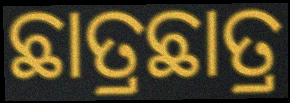
ଛାତ୍ରଛାତ୍ର